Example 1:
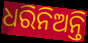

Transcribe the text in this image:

ଧରିନିଅନ୍ତି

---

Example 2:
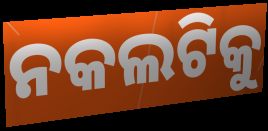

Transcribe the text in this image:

ନକଲଟିକୁ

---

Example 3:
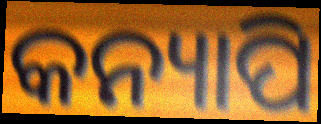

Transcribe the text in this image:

କନ୍ୟାପି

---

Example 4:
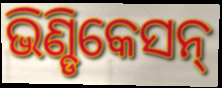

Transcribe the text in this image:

ଭିଣ୍ଡିକେସନ୍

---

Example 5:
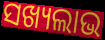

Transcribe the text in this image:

ସଖ୍ୟଲାଭ